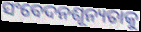
ସଂବେଦନଶୂନ୍ୟତାକୁ